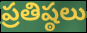
ప్రతిష్ఠలు